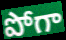
పోగా